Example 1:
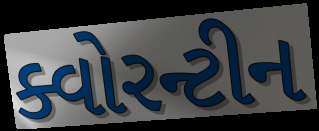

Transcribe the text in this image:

ક્વોરન્ટીન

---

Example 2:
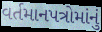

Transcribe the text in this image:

વર્તમાનપત્રોમાંનું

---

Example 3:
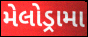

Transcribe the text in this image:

મેલોડ્રામા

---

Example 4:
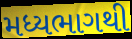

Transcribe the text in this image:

મધ્યભાગથી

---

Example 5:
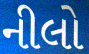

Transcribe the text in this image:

નીલો